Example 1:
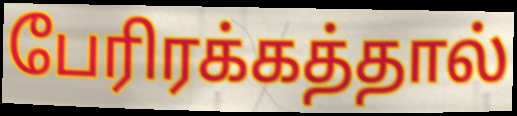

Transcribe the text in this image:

பேரிரக்கத்தால்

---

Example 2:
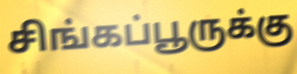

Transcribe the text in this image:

சிங்கப்பூருக்கு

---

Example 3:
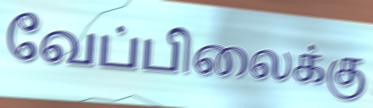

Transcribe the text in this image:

வேப்பிலைக்கு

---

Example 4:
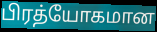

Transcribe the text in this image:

பிரத்யோகமான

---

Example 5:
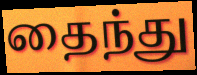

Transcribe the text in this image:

தைந்து